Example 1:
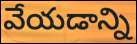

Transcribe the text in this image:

వేయడాన్ని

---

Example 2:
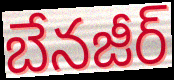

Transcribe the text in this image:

బేనజీర్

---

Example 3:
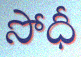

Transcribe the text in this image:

సోధీ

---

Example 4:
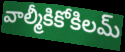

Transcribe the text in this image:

వాల్మీకికోకిలమ్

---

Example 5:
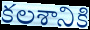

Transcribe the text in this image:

కలశానికి